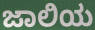
ಜಾಲಿಯ